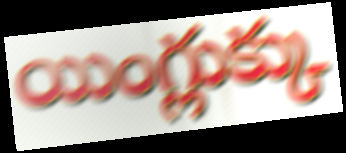
యింగ్లుక్కు